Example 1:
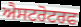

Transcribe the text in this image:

ਐਸਟਰੋਟਰਫ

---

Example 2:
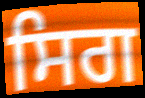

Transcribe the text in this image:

ਸਿਗ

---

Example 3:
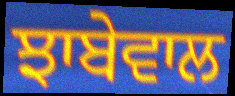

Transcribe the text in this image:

ਝਾਬੇਵਾਲ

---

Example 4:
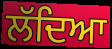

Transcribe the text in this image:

ਲੱਦਿਆ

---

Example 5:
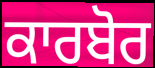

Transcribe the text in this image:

ਕਾਰਬੋਰ